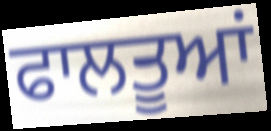
ਫਾਲਤੂਆਂ